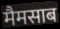
मैमसाब